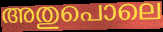
അതുപൊലെ